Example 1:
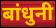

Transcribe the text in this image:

बांधुनी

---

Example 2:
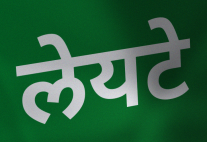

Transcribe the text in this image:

लेयटे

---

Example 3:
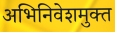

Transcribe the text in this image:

अभिनिवेशमुक्त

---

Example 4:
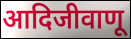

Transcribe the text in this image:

आदिजीवाणू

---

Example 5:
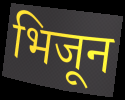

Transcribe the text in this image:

भिजून